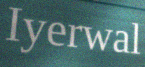
Iyerwal